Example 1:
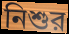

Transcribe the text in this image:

নিশুর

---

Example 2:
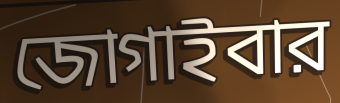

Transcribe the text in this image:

জোগাইবার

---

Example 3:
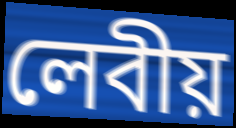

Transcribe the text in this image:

লেবীয়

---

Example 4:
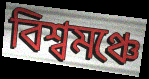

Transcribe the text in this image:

বিশ্বমঞ্চে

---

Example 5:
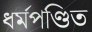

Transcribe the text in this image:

ধর্মপণ্ডিত